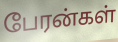
பேரன்கள்